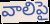
వాలిపై